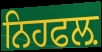
ਨਿਹਫਲ਼